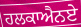
ਹਲਕਾਐਨਏ